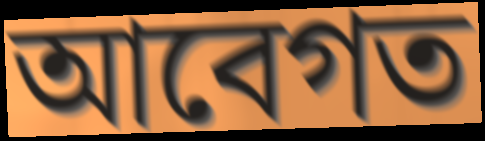
আবেগত